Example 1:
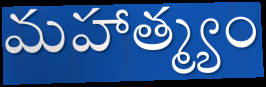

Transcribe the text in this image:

మహాత్మ్యం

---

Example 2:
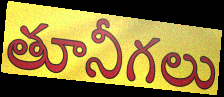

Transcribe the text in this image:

తూనీగలు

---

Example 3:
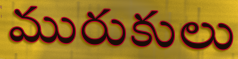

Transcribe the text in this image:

మురుకులు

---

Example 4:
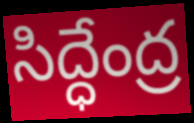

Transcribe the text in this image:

సిద్ధేంద్ర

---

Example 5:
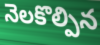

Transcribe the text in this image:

నెలకొల్పిన